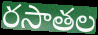
రసాతల